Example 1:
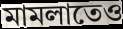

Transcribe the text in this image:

মামলাতেও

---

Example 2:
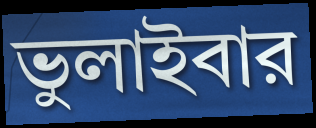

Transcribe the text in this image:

ভুলাইবার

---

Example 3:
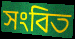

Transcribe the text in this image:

সংবিত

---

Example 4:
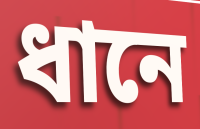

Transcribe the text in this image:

ধানে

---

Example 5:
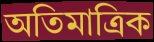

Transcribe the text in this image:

অতিমাত্রিক